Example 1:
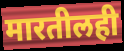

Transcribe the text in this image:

मारतीलही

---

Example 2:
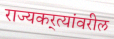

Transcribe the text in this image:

राज्यकर्त्यांवरील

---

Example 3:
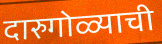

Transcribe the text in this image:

दारुगोळ्याची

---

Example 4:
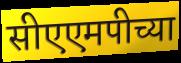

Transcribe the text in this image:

सीएएमपीच्या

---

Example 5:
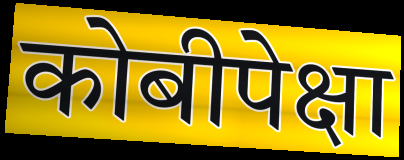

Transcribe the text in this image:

कोबीपेक्षा